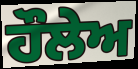
ਹੌਲੇਅ